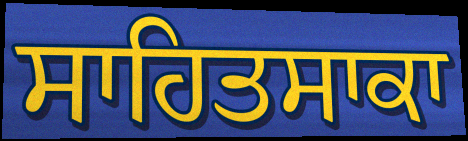
ਸਾਹਿਤਸਾਕਾ